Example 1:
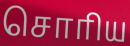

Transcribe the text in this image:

சொரிய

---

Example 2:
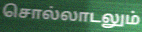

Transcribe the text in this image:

சொல்லாடலும்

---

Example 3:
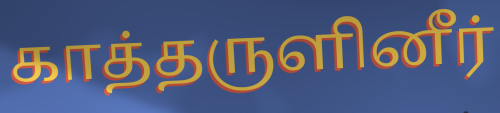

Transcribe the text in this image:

காத்தருளினீர்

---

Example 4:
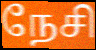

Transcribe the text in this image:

நேசி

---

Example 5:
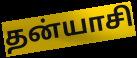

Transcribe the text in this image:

தன்யாசி